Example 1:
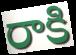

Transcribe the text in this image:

రాకి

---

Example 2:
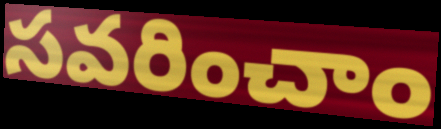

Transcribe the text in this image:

సవరించాం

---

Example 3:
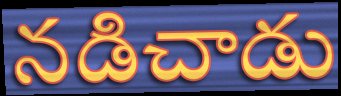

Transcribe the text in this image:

నడిచాడు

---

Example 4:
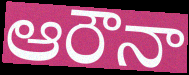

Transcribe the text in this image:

ఆరౌనా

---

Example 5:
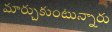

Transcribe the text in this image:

మార్చుకుంటున్నారు